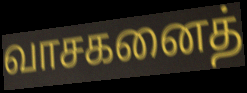
வாசகனைத்